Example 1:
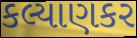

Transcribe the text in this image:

કલ્યાણકર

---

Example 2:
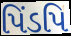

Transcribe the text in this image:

પિંડપિ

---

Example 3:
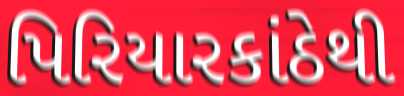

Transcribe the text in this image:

પિરિયારકાંઠેથી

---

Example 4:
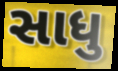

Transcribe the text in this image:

સાધુ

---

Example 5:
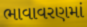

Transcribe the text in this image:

ભાવાવરણમાં